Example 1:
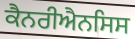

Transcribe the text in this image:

ਕੈਨਰੀਐਨਸਿਸ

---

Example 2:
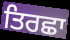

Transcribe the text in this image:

ਤਿਰਛਾ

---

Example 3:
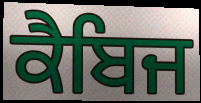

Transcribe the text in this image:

ਕੈਬਿਜ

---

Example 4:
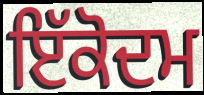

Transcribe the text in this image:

ਇੱਕੋਦਮ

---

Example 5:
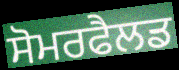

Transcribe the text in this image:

ਸੋਮਰਫੈਲਡ